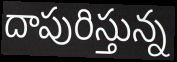
దాపురిస్తున్న